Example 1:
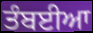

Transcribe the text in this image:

ਤੰਬਈਆ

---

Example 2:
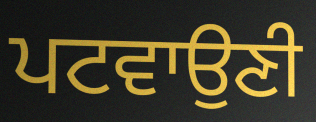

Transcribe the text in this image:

ਪਟਵਾਉਣੀ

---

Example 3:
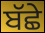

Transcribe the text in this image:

ਬੱਛੇ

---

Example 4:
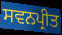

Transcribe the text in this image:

ਸਵਨਪ੍ਰੀਤ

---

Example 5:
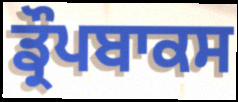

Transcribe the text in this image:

ਡ੍ਰੌਪਬਾਕਸ